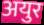
अयुर